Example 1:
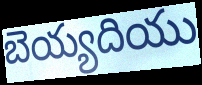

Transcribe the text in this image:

బెయ్యదియు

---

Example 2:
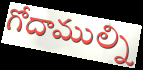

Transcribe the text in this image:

గోదాముల్ని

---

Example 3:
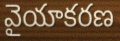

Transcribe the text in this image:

వైయాకరణ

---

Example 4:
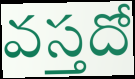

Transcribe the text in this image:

వస్తదో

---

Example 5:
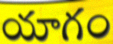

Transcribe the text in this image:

యాగం